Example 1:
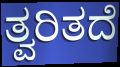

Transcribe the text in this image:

ತ್ವರಿತದೆ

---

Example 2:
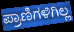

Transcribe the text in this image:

ಪ್ರಾಣಿಗಳಿಗಿಲ್ಲ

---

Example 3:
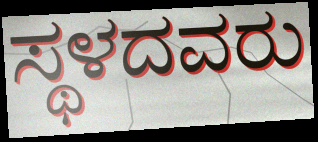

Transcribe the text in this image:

ಸ್ಥಳದವರು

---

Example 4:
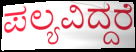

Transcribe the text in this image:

ಪಲ್ಯವಿದ್ದರೆ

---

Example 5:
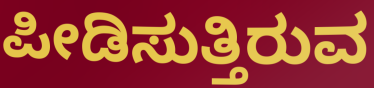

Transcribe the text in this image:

ಪೀಡಿಸುತ್ತಿರುವ